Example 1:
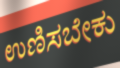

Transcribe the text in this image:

ಉಣಿಸಬೇಕು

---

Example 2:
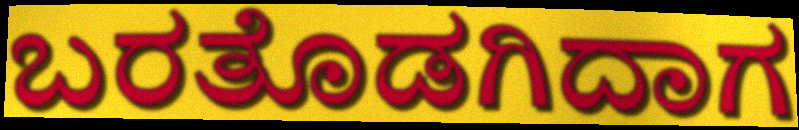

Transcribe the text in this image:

ಬರತೊಡಗಿದಾಗ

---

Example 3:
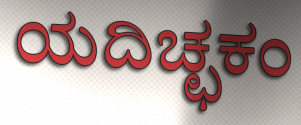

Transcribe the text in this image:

ಯದಿಚ್ಛಕಂ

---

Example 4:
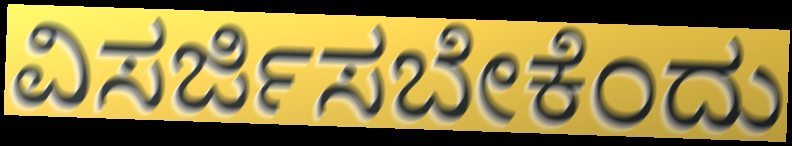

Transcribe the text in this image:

ವಿಸರ್ಜಿಸಬೇಕೆಂದು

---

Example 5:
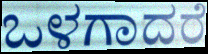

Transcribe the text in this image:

ಒಳಗಾದರೆ